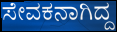
ಸೇವಕನಾಗಿದ್ದ